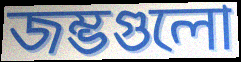
জম্ভগুলো